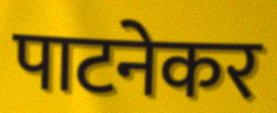
पाटनेकर